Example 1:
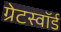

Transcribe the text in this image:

ग्रेटस्वॉर्ड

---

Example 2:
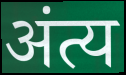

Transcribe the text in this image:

अंत्य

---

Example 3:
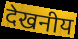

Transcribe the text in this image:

देखनीय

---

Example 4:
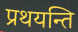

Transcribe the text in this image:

प्रथयन्ति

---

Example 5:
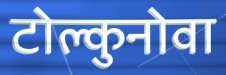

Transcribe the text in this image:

टोल्कुनोवा